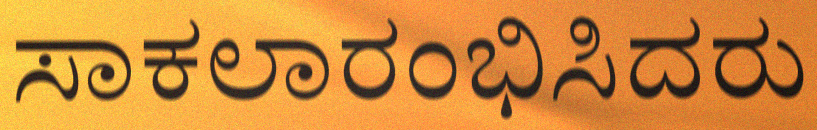
ಸಾಕಲಾರಂಭಿಸಿದರು